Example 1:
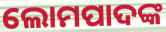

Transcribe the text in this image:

ଲୋମପାଦଙ୍କ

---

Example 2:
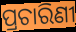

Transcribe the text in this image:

ପ୍ରଚାରିଣୀ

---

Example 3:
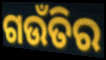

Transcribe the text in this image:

ଗଉଁତିର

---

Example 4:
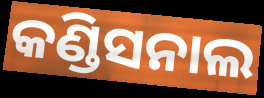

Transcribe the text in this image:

କଣ୍ଡିସନାଲ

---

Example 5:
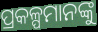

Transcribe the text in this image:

ପ୍ରକଳ୍ପମାନଙ୍କୁ